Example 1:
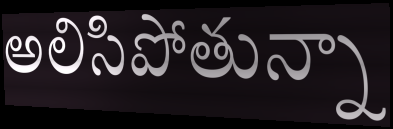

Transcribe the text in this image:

అలిసిపోతున్నా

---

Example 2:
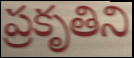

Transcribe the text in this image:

ప్రకృతిని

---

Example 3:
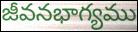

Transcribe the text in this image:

జీవనభాగ్యము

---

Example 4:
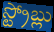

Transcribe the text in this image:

స్ట్రోబ్లు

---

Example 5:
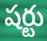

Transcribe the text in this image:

షర్టు